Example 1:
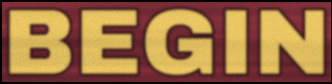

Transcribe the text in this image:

BEGIN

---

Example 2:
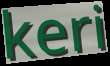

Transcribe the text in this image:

keri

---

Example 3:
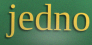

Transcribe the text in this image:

jedno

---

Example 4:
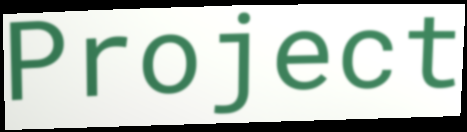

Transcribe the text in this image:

Project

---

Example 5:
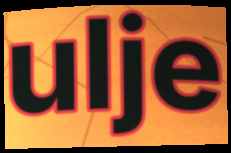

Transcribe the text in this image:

ulje